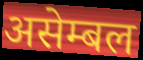
असेम्बल